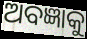
ଅବଜ୍ଞାକୁ